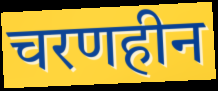
चरणहीन